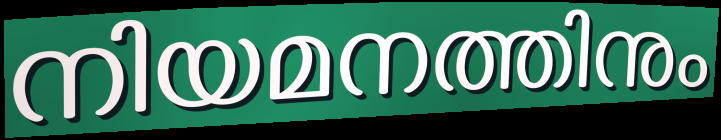
നിയമനത്തിനും